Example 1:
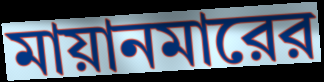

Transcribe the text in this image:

মায়ানমারের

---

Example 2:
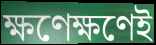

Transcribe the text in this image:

ক্ষণেক্ষণেই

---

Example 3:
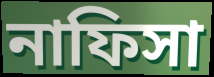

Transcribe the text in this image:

নাফিসা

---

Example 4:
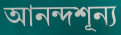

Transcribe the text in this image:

আনন্দশূন্য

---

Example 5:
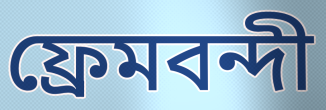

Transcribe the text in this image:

ফ্রেমবন্দী